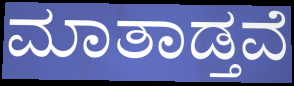
ಮಾತಾಡ್ತವೆ